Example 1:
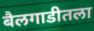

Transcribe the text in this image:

बैलगाडीतला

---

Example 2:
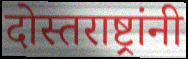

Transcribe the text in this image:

दोस्तराष्ट्रांनी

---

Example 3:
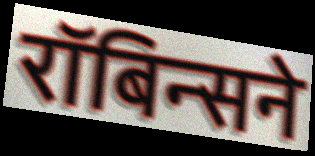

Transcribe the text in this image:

रॉबिन्सने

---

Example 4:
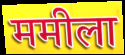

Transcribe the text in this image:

ममीला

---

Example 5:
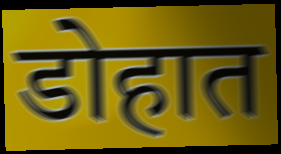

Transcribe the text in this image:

डोहात